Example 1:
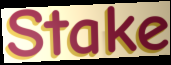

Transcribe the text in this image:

Stake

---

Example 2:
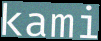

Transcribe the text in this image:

kami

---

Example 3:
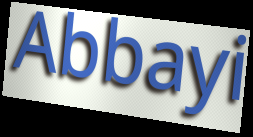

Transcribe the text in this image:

Abbayi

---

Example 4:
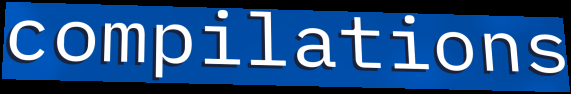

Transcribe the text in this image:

compilations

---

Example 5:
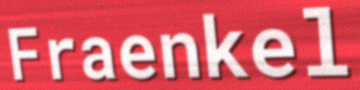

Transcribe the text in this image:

Fraenkel